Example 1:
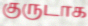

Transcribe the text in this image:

குருடாக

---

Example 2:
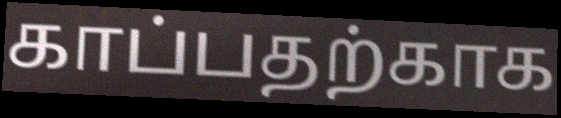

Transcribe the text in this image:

காப்பதற்காக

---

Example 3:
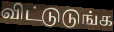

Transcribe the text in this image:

விட்டுடுங்க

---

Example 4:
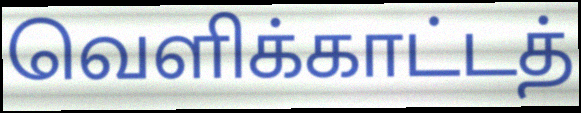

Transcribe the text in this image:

வெளிக்காட்டத்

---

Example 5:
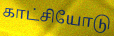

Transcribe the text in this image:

காட்சியோடு